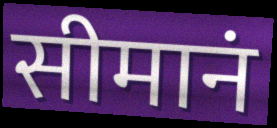
सीमानं